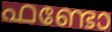
ഫണ്ടോ